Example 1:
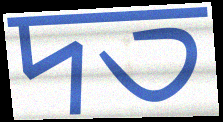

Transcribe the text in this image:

দত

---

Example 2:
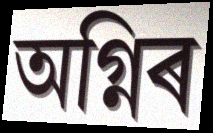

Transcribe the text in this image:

অগ্নিৰ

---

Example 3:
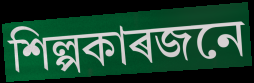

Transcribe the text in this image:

শিল্পকাৰজনে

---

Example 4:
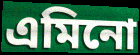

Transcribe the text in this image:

এমিনো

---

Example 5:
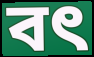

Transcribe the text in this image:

বৎ